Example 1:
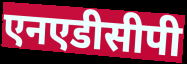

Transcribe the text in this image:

एनएडीसीपी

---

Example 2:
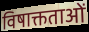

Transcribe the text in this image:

विषाक्तताओं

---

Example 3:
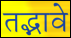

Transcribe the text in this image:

तद्भावे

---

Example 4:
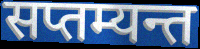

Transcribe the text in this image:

सप्तम्यन्त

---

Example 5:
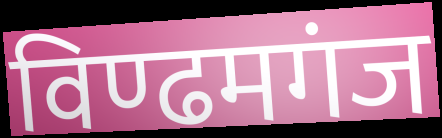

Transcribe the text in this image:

विण्ढमगंज